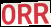
ORR